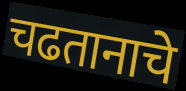
चढतानाचे